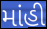
માંહી